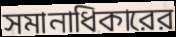
সমানাধিকারের